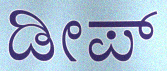
ಡೀಪ್